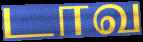
டாவ